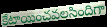
కేటాయించవలసిందిగా